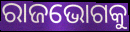
ରାଜଭୋଗକୁ